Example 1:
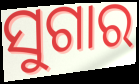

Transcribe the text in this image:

ସୁଗାର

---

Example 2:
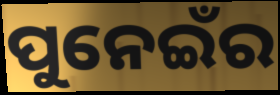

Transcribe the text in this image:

ପୁନେଇଁର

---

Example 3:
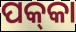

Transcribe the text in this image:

ପକ୍‌କା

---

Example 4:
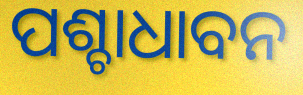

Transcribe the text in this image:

ପଶ୍ଚାଧାବନ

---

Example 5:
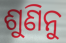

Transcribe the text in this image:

ଶୁଣିନୁ